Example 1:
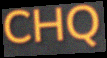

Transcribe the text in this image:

CHQ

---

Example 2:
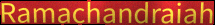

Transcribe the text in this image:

Ramachandraiah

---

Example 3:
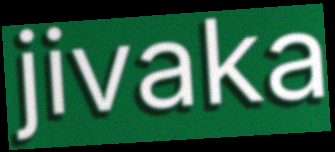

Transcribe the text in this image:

jivaka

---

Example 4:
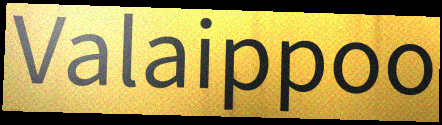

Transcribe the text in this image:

Valaippoo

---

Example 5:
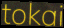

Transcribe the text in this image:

tokai